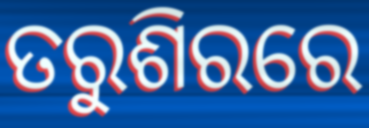
ତରୁଶିରରେ